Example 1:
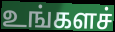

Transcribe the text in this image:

உங்களச்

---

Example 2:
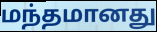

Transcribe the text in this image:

மந்தமானது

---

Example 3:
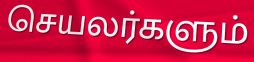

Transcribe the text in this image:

செயலர்களும்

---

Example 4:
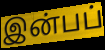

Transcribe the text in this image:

இன்பப்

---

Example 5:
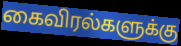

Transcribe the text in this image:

கைவிரல்களுக்கு